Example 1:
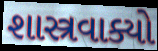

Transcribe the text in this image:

શાસ્ત્રવાક્યો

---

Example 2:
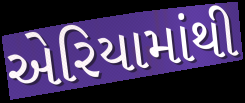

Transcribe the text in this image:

એરિયામાંથી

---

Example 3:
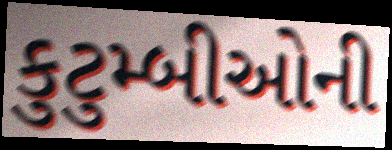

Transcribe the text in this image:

કુટુમ્બીઓની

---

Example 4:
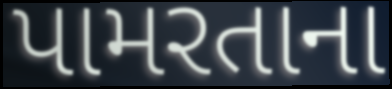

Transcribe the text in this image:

પામરતાના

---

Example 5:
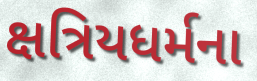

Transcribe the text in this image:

ક્ષત્રિયધર્મના